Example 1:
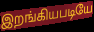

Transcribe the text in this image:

இறங்கியபடியே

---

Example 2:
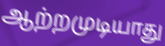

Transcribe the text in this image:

ஆற்றமுடியாது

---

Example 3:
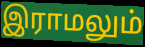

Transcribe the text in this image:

இராமலும்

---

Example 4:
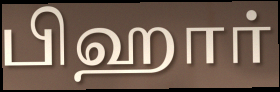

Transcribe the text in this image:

பிஹார்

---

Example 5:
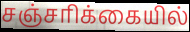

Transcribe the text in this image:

சஞ்சரிக்கையில்